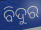
ବିଦୁର